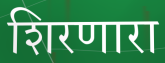
शिरणारा